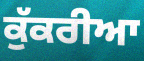
ਕੁੱਕਰੀਆ